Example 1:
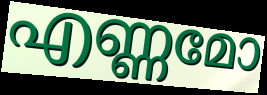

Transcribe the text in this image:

എണ്ണമോ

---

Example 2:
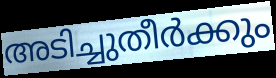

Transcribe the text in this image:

അടിച്ചുതീർക്കും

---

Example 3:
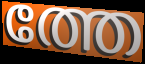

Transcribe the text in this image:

ത്തേ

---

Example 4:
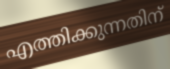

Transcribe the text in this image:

എത്തിക്കുന്നതിന്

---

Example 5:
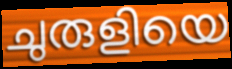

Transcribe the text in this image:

ചുരുളിയെ